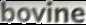
bovine